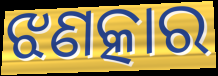
ଝଣତ୍କାର